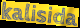
kalisida